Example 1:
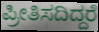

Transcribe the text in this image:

ಪ್ರೀತಿಸದಿದ್ದರೆ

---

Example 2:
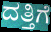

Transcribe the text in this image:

ದತ್ತಿಗೆ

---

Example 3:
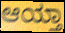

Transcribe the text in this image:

ಆಯ್ತಾ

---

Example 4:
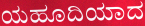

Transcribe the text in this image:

ಯಹೂದಿಯಾದ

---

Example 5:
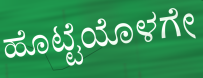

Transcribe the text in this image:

ಹೊಟ್ಟೆಯೊಳಗೇ